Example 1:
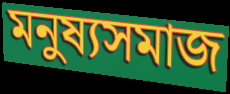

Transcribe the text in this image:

মনুষ্যসমাজ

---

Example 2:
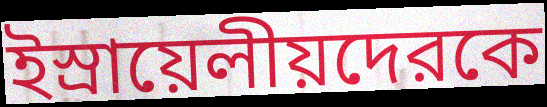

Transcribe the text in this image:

ইস্রায়েলীয়দেরকে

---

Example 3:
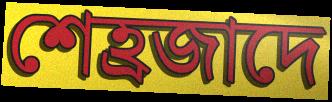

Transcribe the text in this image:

শেহ্রজাদে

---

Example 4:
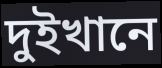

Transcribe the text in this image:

দুইখানে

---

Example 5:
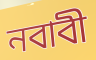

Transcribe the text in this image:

নবাবী